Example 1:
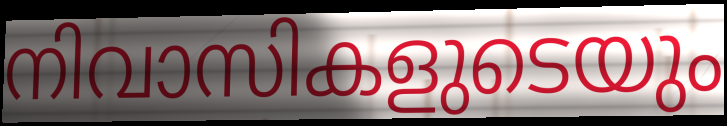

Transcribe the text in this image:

നിവാസികളുടെയും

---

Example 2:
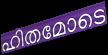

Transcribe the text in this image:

ഹിതമോടെ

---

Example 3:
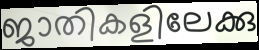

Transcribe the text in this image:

ജാതികളിലേക്കു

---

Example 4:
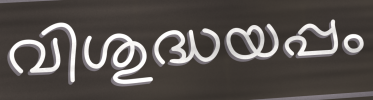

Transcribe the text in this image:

വിശുദ്ധയപ്പം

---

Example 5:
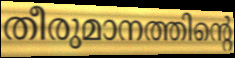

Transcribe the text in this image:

തീരുമാനത്തിന്റെ